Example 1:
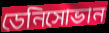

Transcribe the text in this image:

ডেনিসোভান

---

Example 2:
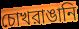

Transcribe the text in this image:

চোখরাঙানি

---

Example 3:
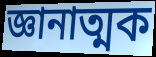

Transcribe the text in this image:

জ্ঞানাত্মক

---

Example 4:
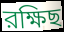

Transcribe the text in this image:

রক্ষিছ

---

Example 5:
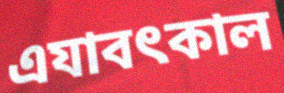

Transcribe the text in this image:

এযাবৎকাল